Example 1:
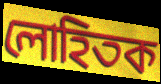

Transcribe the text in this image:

লোহিতক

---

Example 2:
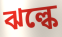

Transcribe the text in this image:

ঝল্কে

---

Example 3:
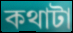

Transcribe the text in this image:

কথাটা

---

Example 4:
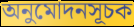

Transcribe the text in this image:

অনুমোদনসূচক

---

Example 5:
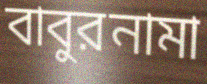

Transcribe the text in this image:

বাবুরনামা